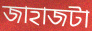
জাহাজটা